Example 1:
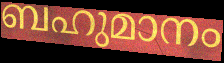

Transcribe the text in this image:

ബഹുമാനം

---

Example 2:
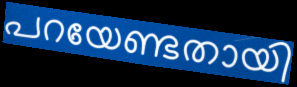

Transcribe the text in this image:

പറയേണ്ടതായി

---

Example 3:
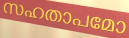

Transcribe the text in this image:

സഹതാപമോ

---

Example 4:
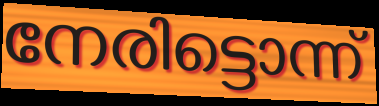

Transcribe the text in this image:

നേരിട്ടൊന്ന്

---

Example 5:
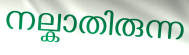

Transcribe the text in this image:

നല്കാതിരുന്ന